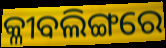
କ୍ଳୀବଲିଙ୍ଗରେ